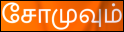
சோமுவும்